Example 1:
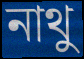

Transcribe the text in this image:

নাথু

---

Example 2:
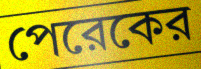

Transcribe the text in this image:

পেরেকের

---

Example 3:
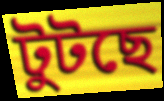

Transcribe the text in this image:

টুটছে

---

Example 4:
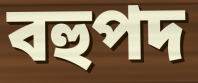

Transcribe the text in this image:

বহুপদ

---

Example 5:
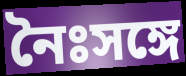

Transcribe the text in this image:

নৈঃসঙ্গে